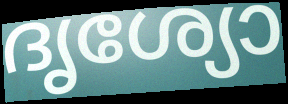
ദൃശ്യോ